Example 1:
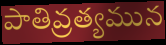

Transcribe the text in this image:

పాతివ్రత్యమున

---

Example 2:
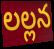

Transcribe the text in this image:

లల్లన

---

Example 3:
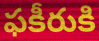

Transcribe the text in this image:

ఫకీరుకి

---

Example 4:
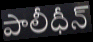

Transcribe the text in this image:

పాలీధీన్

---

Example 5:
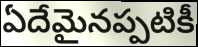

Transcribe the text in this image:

ఏదేమైనప్పటికీ